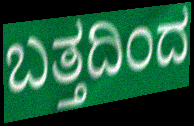
ಬತ್ತದಿಂದ